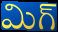
మిగ్